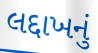
લદ્દાખનું